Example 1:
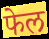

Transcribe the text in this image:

फेल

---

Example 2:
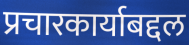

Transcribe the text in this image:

प्रचारकार्याबद्दल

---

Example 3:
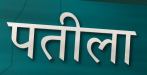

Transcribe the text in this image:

पतीला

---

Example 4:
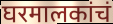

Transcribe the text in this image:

घरमालकांचं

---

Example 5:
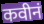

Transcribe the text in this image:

कवीनं